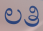
ಲತಿ